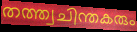
തത്ത്വചിന്തകരും